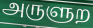
அருளுற